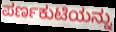
ಪರ್ಣಕುಟಿಯನ್ನು